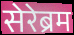
सेरेब्रम